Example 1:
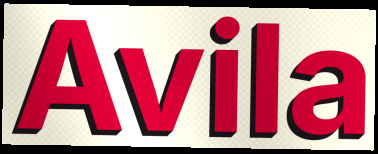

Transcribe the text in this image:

Avila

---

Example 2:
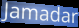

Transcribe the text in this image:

Jamadar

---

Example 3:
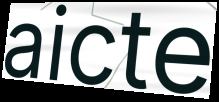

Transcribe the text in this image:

aicte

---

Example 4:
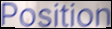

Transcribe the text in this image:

Position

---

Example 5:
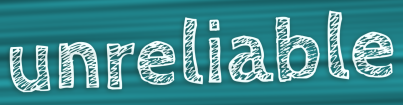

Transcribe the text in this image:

unreliable